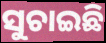
ସୁଚାଇଛି